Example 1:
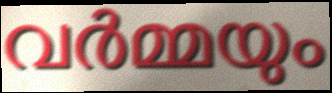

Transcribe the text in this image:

വർമ്മയും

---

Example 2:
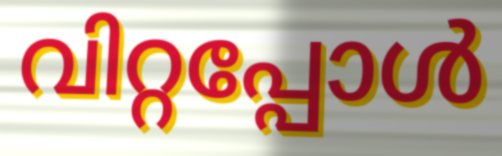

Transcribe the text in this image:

വിറ്റപ്പോൾ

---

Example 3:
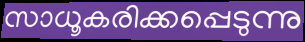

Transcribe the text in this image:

സാധൂകരിക്കപ്പെടുന്നു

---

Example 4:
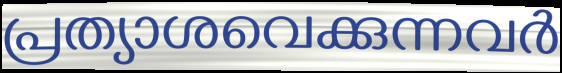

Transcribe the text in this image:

പ്രത്യാശവെക്കുന്നവർ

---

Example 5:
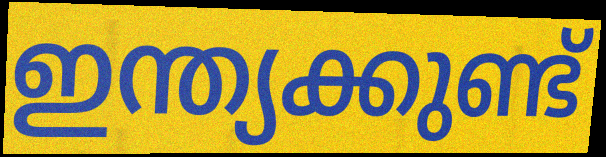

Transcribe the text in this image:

ഇന്ത്യക്കുണ്ട്